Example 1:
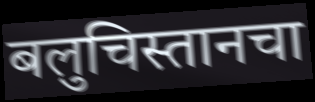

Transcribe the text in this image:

बलुचिस्तानचा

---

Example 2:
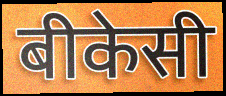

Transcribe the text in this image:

बीकेसी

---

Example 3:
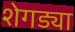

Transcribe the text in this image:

शेगड्या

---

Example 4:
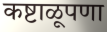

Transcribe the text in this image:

कष्टाळूपणा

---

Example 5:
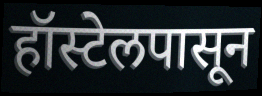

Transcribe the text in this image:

हॉस्टेलपासून